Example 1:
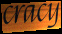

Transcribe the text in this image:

cracy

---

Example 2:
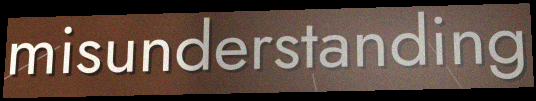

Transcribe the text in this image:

misunderstanding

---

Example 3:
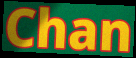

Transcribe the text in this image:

Chan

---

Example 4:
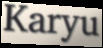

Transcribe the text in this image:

Karyu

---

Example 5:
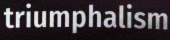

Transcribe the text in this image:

triumphalism